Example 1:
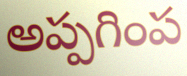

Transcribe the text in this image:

అప్పగింప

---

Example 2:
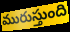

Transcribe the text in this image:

మురుస్తుంది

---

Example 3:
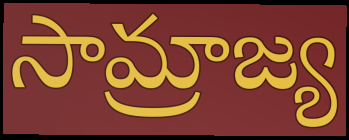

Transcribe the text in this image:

సామ్రాజ్య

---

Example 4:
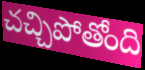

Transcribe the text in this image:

చచ్చిపోతోంది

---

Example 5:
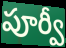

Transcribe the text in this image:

పూర్వీ